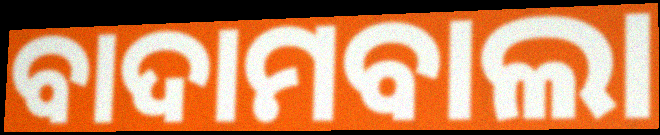
ବାଦାମବାଲା